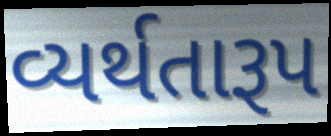
વ્યર્થતારૂપ